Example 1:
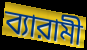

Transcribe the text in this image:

ব্যারামী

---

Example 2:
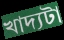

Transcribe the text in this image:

খাদ্যটা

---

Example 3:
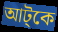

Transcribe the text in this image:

আট্কে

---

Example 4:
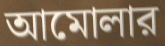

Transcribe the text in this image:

আমোলার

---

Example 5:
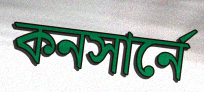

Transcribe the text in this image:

কনসার্নে